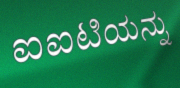
ಐಐಟಿಯನ್ನು